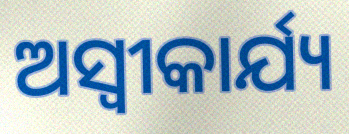
ଅସ୍ୱୀକାର୍ଯ୍ୟ